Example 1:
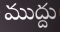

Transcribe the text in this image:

ముద్దు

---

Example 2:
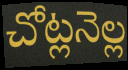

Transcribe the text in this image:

చోట్లనెల్ల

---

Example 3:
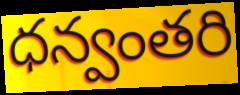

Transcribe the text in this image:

ధన్వంతరి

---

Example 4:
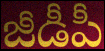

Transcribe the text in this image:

జీడీపీ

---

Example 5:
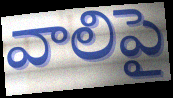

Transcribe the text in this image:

వాలిపై